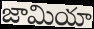
జామియా